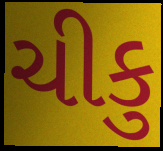
ચીકુ